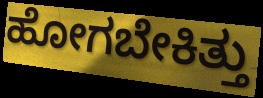
ಹೋಗಬೇಕಿತ್ತು